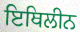
ਇਥਿਲੀਨ